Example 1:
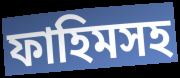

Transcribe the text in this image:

ফাহিমসহ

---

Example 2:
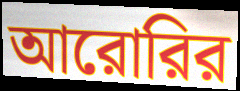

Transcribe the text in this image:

আরোরির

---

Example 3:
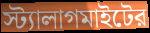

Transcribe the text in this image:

স্ট্যালাগমাইটের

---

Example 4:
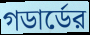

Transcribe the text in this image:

গডার্ডের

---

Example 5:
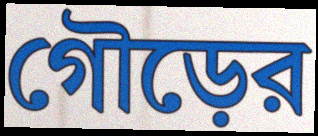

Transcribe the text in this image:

গৌড়ের